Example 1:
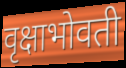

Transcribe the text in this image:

वृक्षाभोवती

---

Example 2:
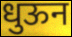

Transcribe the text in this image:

धुऊन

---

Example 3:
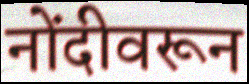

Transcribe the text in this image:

नोंदीवरून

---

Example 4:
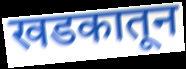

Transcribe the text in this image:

खडकातून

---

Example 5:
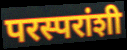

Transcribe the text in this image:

परस्परांशी